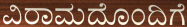
ವಿರಾಮದೊಂದಿಗೆ